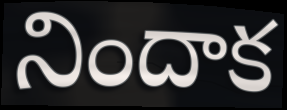
నిందాక